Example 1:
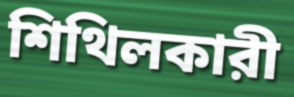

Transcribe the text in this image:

শিথিলকারী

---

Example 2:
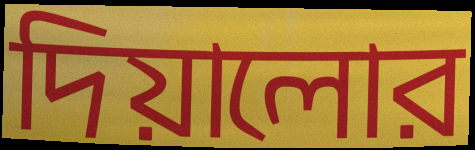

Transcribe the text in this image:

দিয়ালোর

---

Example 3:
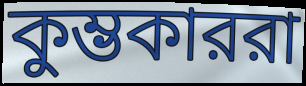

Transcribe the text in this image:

কুম্ভকাররা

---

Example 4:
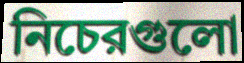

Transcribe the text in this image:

নিচেরগুলো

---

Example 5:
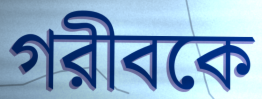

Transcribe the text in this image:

গরীবকে